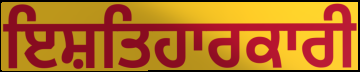
ਇਸ਼ਤਿਹਾਰਕਾਰੀ